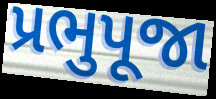
પ્રભુપૂજા